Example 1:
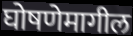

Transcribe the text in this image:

घोषणेमागील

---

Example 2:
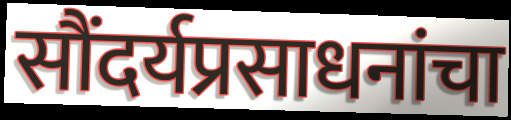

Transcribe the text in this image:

सौंदर्यप्रसाधनांचा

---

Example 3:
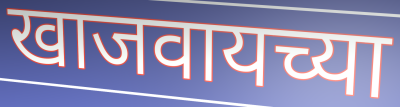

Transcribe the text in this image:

खाजवायच्या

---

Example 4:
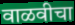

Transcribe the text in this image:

वाळवीचा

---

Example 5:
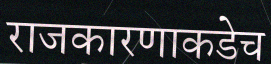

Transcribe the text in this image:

राजकारणाकडेच